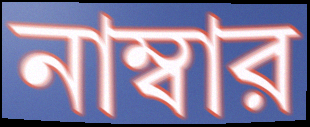
নাম্বার